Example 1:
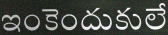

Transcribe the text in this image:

ఇంకెందుకులే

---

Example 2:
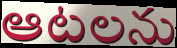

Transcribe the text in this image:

ఆటలను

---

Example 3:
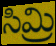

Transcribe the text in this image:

సిమ్రి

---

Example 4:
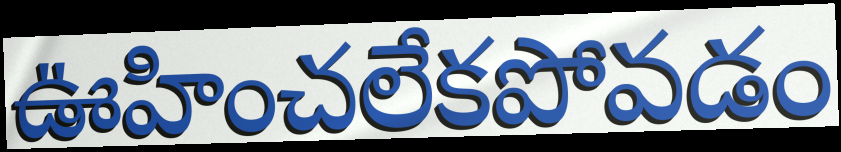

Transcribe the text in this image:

ఊహించలేకపోవడం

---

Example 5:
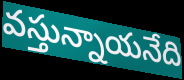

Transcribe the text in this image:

వస్తున్నాయనేది